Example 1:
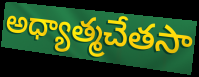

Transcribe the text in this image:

అధ్యాత్మచేతసా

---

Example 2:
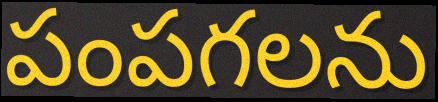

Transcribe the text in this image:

పంపగలను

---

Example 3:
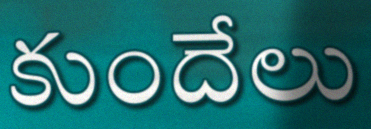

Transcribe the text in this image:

కుందేలు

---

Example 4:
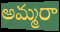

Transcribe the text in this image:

అమ్మరా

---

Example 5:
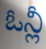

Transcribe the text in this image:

ఓన్లీ